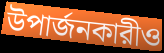
উপার্জনকারীও